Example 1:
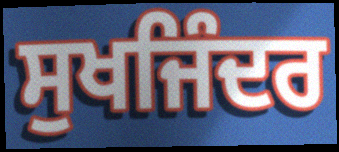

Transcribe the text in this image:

ਸੁਖਜਿੰਦਰ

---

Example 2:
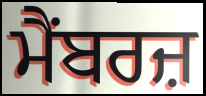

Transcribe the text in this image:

ਮੈਂਬਰਜ਼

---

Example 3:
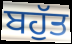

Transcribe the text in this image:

ਬਹੁੱਤ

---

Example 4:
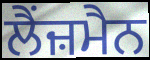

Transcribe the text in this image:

ਲੈਂਜ਼ਮੈਨ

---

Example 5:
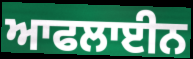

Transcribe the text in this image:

ਆਫਲਾਈਨ